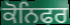
ਕੋਨਿਫਰ